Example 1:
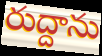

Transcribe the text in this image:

రుద్దాను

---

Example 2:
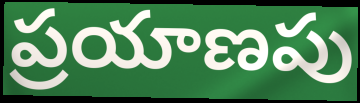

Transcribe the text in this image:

ప్రయాణపు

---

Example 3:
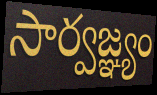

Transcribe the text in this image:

సార్వజ్ఞ్యం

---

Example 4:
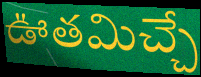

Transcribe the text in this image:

ఊతమిచ్చే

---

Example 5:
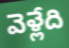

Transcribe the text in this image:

వెళ్లేది